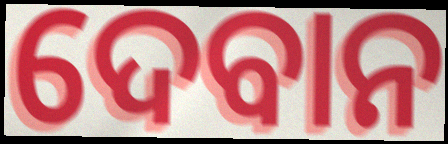
ଦେବାନ